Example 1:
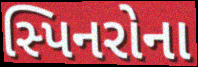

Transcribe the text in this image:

સ્પિનરોના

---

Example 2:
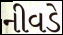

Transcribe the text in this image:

નીવડે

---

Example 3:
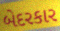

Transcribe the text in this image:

બેદરકાર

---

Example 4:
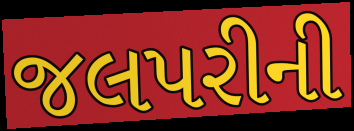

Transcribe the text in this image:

જલપરીની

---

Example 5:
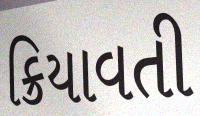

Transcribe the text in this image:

ક્રિયાવતી